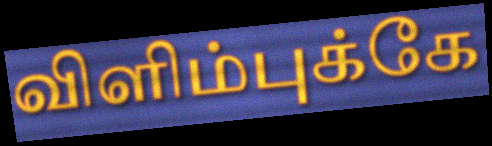
விளிம்புக்கே